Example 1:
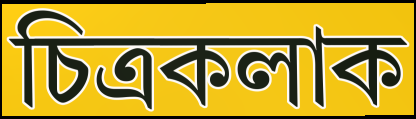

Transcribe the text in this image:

চিত্ৰকলাক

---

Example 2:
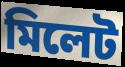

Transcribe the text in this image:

মিলেট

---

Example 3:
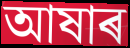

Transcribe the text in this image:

আষাৰ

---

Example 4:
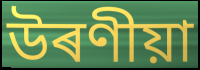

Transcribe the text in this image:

উৰণীয়া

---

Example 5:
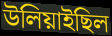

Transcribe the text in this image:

উলিয়াইছিল